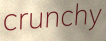
crunchy